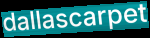
dallascarpet